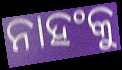
ନାହଂକୁ